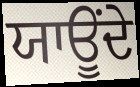
ਯਾਊਂਦੇ